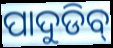
ପାଦୁଡିବ୍